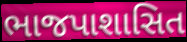
ભાજપાશાસિત